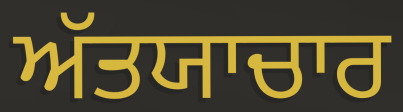
ਅੱਤਯਾਚਾਰ